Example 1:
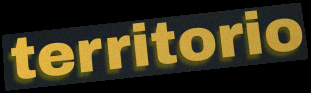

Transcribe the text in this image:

territorio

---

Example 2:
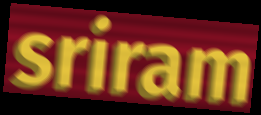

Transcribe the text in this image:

sriram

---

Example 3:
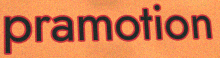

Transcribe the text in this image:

pramotion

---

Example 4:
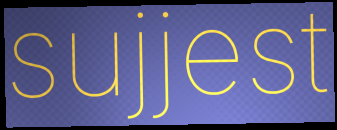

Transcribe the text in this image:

sujjest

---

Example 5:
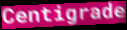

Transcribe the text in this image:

Centigrade